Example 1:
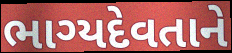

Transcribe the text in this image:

ભાગ્યદેવતાને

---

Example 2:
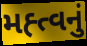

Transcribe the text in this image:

મહ્ત્વનું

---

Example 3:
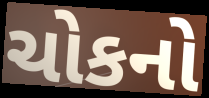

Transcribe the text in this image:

ચોકનો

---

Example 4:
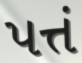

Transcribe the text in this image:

પત્તં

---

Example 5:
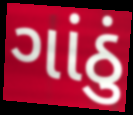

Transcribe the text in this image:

ગાંઠું